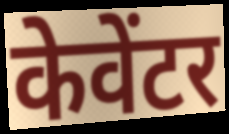
केवेंटर